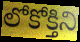
లోకోక్తిని